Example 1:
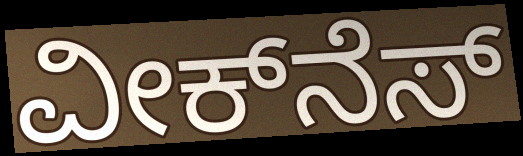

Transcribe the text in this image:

ವೀಕ್‌ನೆಸ್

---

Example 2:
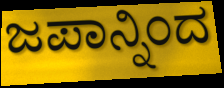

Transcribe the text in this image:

ಜಪಾನ್ನಿಂದ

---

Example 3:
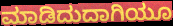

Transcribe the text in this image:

ಮಾಡಿದುದಾಗಿಯೂ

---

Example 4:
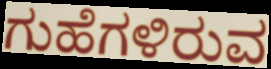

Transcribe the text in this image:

ಗುಹೆಗಳಿರುವ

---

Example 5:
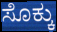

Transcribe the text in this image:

ಸೊಕ್ಕು